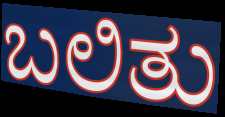
ಬಲಿತು